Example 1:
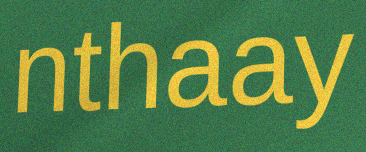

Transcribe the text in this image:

nthaay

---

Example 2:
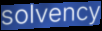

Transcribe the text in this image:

solvency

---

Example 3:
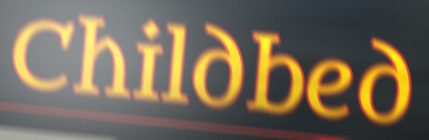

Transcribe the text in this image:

Childbed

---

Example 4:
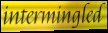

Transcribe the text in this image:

intermingled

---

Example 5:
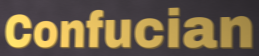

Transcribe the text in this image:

Confucian